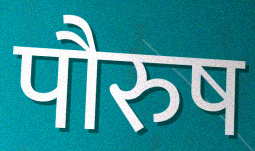
पौरुष